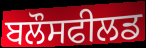
ਬਲੌਸਫੀਲਡ